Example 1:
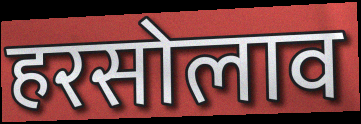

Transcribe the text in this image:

हरसोलाव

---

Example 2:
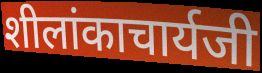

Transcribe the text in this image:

शीलांकाचार्यजी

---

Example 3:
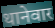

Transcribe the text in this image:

थानेवार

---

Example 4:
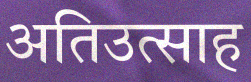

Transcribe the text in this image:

अतिउत्साह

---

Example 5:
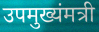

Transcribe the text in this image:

उपमुख्यंमत्री